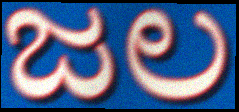
ಜಲ